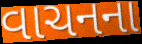
વાચનના